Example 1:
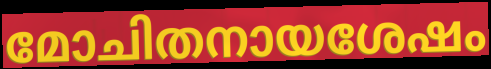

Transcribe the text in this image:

മോചിതനായശേഷം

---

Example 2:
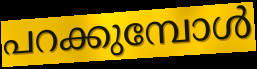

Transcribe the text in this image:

പറക്കുമ്പോൾ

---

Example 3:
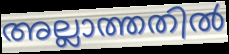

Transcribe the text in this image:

അല്ലാത്തതിൽ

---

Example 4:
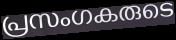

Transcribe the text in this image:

പ്രസംഗകരുടെ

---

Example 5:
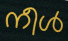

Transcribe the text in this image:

നീൾ